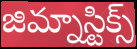
జిమ్నాస్టిక్స్